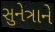
સુનેત્રાને